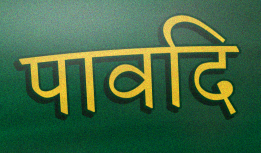
पावदि